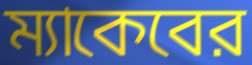
ম্যাকেবের